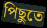
পিছুতে